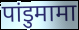
पांडुमामा